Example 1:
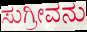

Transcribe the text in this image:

ಸುಗ್ರೀವನು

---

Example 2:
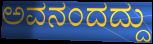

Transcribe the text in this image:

ಅವನಂದದ್ದು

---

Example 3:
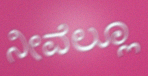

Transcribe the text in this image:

ನೀವೆಲ್ಲೂ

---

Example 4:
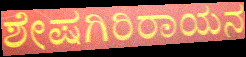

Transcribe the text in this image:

ಶೇಷಗಿರಿರಾಯನ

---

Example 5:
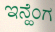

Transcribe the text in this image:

ಇನ್ಹೆಂಗ